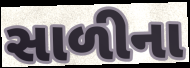
સાળીના